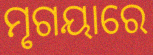
ମୃଗୟାରେ